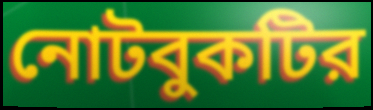
নোটবুকটির